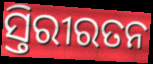
ସ୍ତିରୀରତନ